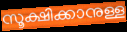
സൂക്ഷിക്കാനുള്ള